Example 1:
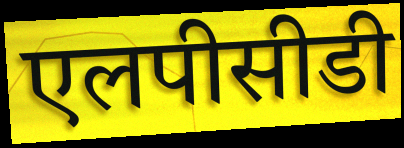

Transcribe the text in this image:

एलपीसीडी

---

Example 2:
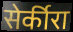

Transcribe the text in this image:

सेर्कीरा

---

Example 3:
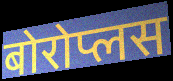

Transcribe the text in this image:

बोरोप्लस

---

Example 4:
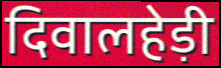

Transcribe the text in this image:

दिवालहेड़ी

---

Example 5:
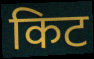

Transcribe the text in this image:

किट